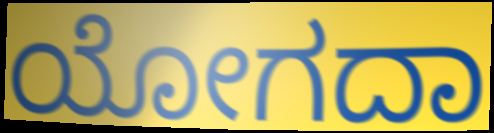
ಯೋಗದಾ